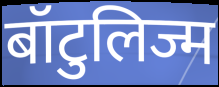
बॉटुलिज्म